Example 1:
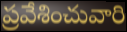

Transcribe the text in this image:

ప్రవేశించువారి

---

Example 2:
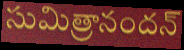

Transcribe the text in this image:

సుమిత్రానందన్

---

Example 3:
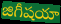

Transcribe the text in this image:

జిగీషయా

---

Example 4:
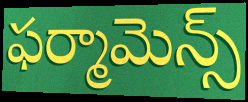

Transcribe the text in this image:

ఫర్మామెన్స్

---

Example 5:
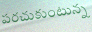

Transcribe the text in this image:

పరచుకుంటున్న